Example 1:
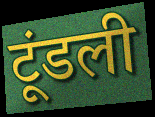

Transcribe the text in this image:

टूंडली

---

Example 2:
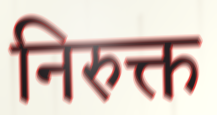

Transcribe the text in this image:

निरुक्त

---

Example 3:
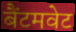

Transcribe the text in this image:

बैंटमवेट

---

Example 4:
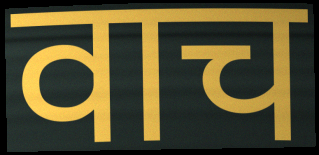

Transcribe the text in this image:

वाच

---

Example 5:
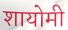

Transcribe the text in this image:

शायोमी